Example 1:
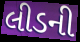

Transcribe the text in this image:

લીડની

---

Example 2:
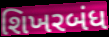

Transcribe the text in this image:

શિખરબંધ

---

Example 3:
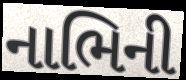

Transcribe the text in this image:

નાભિની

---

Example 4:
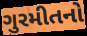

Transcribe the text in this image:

ગુરમીતનો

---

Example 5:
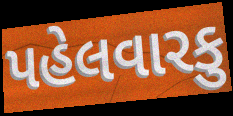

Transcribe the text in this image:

પહેલવારકુ